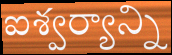
ఐశ్వర్యాన్ని